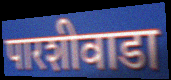
पारशीवाडा